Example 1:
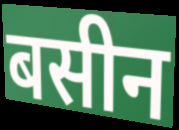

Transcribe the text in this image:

बसीन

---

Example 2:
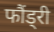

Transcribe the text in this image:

फौंड्री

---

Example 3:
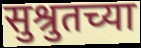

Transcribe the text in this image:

सुश्रुतच्या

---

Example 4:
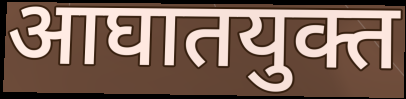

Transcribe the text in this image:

आघातयुक्त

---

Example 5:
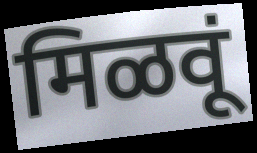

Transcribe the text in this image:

मिळवूं